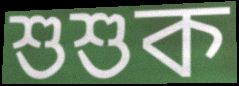
শুশুক